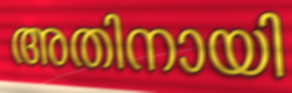
അതിനായി